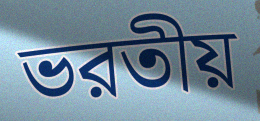
ভরতীয়